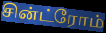
சின்ட்ரோம்